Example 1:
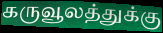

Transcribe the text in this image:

கருவூலத்துக்கு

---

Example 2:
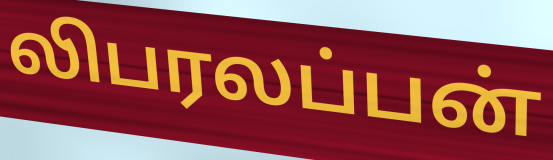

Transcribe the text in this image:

லிபரலப்பன்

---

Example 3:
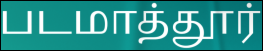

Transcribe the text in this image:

படமாத்தூர்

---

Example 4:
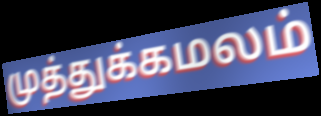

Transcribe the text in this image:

முத்துக்கமலம்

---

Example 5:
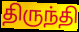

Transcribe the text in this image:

திருந்தி